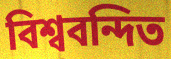
বিশ্ববন্দিত